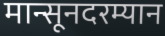
मान्सूनदरम्यान